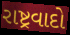
રાષ્ટ્રવાદો